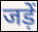
जड़ें